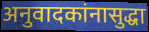
अनुवादकांनासुद्धा